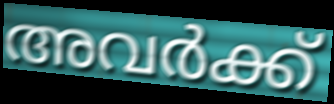
അവർക്ക്